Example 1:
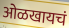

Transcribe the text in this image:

ओळखायचं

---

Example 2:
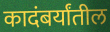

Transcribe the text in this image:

कादंबर्यांतील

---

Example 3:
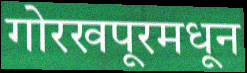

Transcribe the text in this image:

गोरखपूरमधून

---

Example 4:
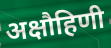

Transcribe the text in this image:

अक्षौहिणी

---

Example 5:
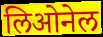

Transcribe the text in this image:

लिओनेल